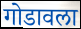
गोडावला